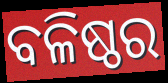
ବଳିଷ୍ଠର